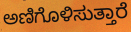
ಅಣಿಗೊಳಿಸುತ್ತಾರೆ